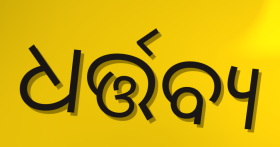
ଧର୍ତ୍ତବ୍ୟ